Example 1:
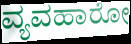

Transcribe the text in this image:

ವ್ಯವಹಾರೋ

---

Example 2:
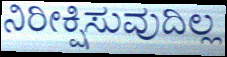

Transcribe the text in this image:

ನಿರೀಕ್ಷಿಸುವುದಿಲ್ಲ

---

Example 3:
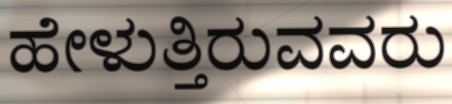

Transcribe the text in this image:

ಹೇಳುತ್ತಿರುವವರು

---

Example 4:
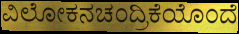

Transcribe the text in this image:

ವಿಲೋಕನಚಂದ್ರಿಕೆಯೊಂದೆ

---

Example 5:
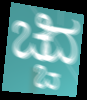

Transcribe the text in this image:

ಚ್ಚಿದ